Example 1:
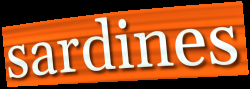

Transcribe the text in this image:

sardines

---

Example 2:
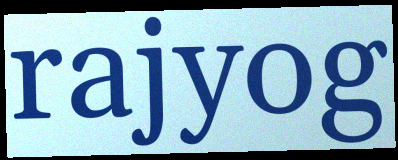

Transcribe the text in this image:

rajyog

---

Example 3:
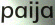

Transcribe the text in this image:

paija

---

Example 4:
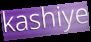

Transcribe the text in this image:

kashiye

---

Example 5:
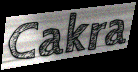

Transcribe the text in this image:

Cakra